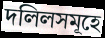
দলিলসমূহে